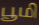
பூமி